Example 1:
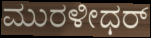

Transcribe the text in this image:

ಮುರಳೀಧರ್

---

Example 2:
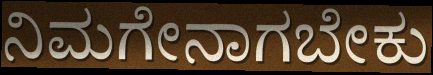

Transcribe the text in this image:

ನಿಮಗೇನಾಗಬೇಕು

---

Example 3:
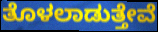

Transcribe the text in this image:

ತೊಳಲಾಡುತ್ತೇವೆ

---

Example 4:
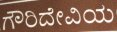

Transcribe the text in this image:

ಗೌರಿದೇವಿಯ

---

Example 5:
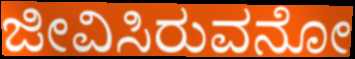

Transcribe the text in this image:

ಜೀವಿಸಿರುವನೋ